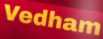
Vedham